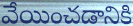
వేయించడానికి